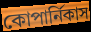
কোপার্নিকাস